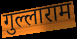
गुल्लाराम